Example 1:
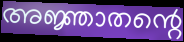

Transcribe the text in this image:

അജ്ഞാതന്റെ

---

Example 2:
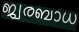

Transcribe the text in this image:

ജ്വരബാധ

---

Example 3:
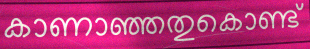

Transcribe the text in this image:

കാണാഞ്ഞതുകൊണ്ട്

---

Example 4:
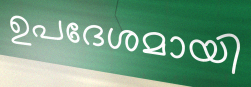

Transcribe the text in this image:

ഉപദേശമായി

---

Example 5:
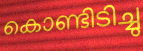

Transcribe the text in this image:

കൊണ്ടിടിച്ചു